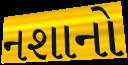
નશાનો